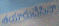
తయారుచేసినా